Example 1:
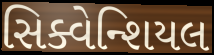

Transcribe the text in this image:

સિક્વેન્શિયલ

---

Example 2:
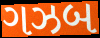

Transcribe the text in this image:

ગઝબ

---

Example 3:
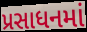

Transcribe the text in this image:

પ્રસાધનમાં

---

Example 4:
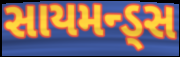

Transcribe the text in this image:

સાયમન્ડ્સ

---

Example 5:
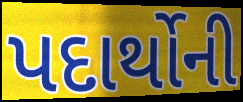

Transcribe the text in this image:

પદાર્થોની